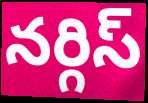
నర్గిస్